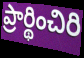
ప్రార్థించిరి